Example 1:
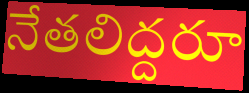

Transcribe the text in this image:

నేతలిద్దరూ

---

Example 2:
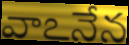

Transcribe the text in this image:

వాఽనేన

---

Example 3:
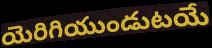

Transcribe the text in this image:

యెరిగియుండుటయే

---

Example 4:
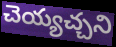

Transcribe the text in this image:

చెయ్యచ్చని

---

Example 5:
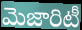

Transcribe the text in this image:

మెజారిటీ